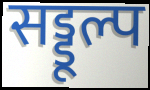
सड्डूल्प